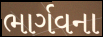
ભાર્ગવના